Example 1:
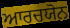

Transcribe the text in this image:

ਆਰਚਯੋਨ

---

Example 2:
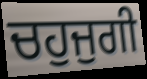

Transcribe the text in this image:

ਚਹੁਜੁਗੀ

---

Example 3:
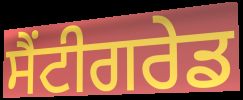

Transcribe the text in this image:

ਸੈਂਟੀਗਰੇਡ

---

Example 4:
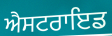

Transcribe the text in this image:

ਐਸਟਰਾਇਡ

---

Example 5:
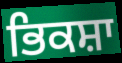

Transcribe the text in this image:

ਭਿਕਸ਼ਾ